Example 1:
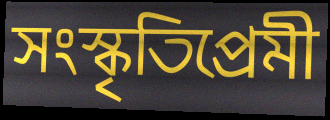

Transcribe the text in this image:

সংস্কৃতিপ্রেমী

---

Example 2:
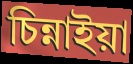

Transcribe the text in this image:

চিন্নাইয়া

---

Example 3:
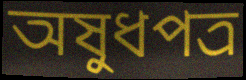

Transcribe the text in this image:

অষুধপত্র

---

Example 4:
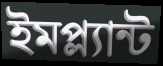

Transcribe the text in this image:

ইমপ্ল্যান্ট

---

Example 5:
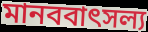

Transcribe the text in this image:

মানববাৎসল্য